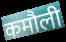
कमौली